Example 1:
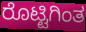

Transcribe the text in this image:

ರೊಟ್ಟಿಗಿಂತ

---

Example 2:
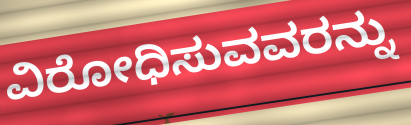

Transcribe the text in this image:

ವಿರೋಧಿಸುವವರನ್ನು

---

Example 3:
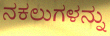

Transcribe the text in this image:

ನಕಲುಗಳನ್ನು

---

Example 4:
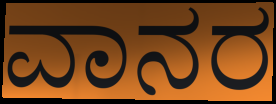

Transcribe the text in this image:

ವಾನರ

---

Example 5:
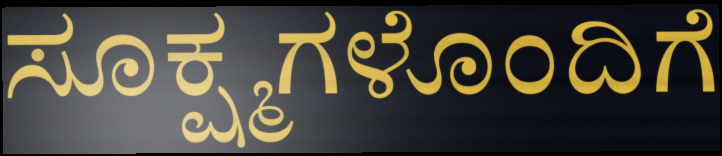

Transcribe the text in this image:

ಸೂಕ್ಷ್ಮಗಳೊಂದಿಗೆ